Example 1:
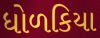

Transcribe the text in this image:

ધોળકિયા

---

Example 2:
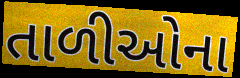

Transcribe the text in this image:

તાળીઓના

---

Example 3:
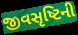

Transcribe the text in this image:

જીવસૃષ્ટિની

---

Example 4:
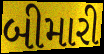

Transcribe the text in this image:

બીમારી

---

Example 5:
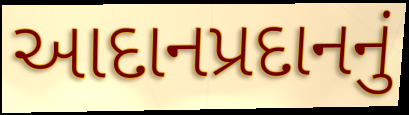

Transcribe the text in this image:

આદાનપ્રદાનનું